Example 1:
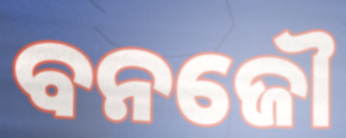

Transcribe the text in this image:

ବନଜୌ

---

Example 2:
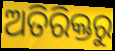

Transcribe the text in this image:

ଅତିରିକ୍ତରୁ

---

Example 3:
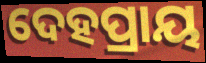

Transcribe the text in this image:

ଦେହପ୍ରାୟ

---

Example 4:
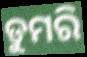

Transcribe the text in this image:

ଡୁମରି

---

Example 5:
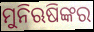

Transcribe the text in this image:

ମୁନିଋଷିଙ୍କର